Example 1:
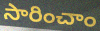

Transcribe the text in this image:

సారించాం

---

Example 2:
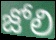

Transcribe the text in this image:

జోలి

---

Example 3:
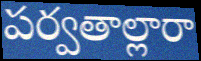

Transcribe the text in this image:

పర్వతాల్లారా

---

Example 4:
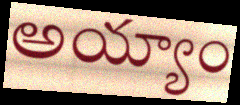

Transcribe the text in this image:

అయ్యాం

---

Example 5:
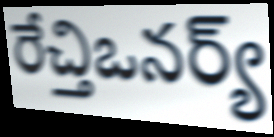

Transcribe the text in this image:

రేచ్తిఒనర్య్